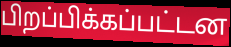
பிறப்பிக்கப்பட்டன